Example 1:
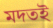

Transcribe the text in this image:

মদতই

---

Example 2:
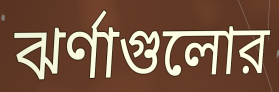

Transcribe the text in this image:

ঝর্ণাগুলোর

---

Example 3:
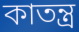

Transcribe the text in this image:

কাতন্ত্র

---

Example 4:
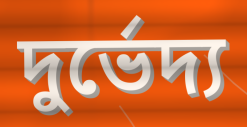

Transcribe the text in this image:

দুর্ভেদ্য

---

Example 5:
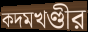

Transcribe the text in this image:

কদমখণ্ডীর